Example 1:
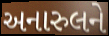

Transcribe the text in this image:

અનારુલને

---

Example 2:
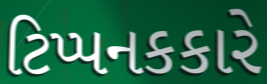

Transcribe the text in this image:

ટિપ્પનકકારે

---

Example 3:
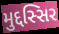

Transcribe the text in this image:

મુદ્દસ્સિર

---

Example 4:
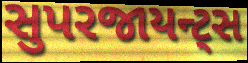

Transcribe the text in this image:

સુપરજાયન્ટ્સ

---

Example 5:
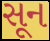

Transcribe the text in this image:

સૂન